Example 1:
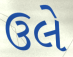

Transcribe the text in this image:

ઉલે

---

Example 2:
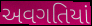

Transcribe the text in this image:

અવગતિયાં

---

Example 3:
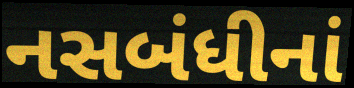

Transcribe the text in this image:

નસબંધીનાં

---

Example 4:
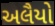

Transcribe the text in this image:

અલૈયો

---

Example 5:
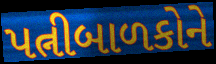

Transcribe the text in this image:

પત્નીબાળકોને